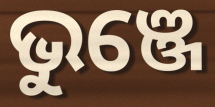
ଭୁଞ୍ଜେ